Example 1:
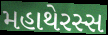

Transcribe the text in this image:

મહાથેરસ્સ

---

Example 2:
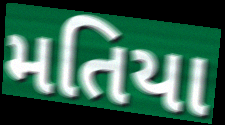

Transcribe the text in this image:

મતિયા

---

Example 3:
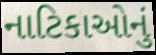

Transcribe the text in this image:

નાટિકાઓનું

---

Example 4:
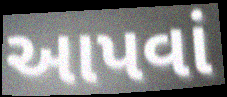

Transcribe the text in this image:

આપવાં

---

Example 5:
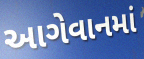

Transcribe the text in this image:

આગેવાનમાં